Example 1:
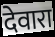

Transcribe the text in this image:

देवारा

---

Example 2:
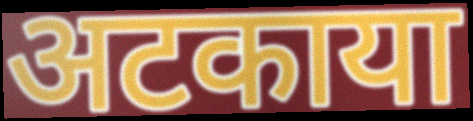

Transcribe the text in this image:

अटकाया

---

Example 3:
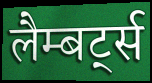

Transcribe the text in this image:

लैम्बर्ट्स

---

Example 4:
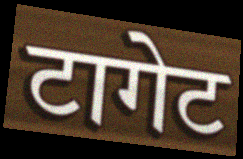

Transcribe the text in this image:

टागेट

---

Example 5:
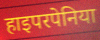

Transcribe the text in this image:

हाइपरपेनिया